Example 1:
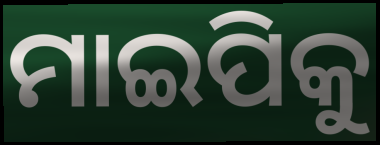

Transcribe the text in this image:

ମାଇପିକୁ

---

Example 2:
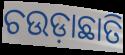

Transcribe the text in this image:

ଚଉଡ଼ାଛାତି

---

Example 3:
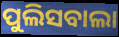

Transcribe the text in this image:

ପୁଲିସବାଲା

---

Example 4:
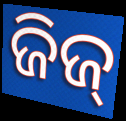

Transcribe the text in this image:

ଜିଜ୍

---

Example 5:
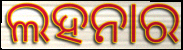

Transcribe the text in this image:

ଲହନାର